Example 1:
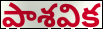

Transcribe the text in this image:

పాశవిక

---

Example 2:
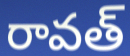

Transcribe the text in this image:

రావత్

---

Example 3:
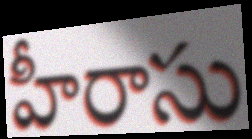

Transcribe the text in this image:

హీరాసు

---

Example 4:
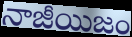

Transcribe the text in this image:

నాజీయిజం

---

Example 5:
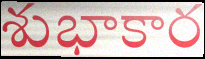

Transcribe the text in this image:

శుభాకార